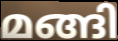
മങ്ങി